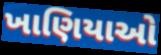
ખાણિયાઓ